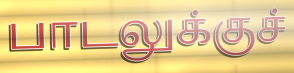
பாடலுக்குச்